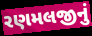
રણમલજીનું